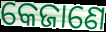
କେଜାଣେ